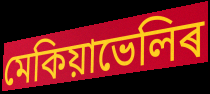
মেকিয়াভেলিৰ